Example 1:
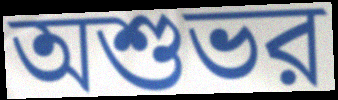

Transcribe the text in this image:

অশুভর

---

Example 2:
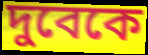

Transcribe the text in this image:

দুবেকে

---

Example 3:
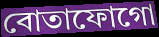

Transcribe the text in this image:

বোতাফোগো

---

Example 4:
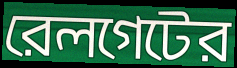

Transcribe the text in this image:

রেলগেটের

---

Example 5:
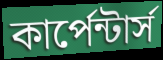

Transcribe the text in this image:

কার্পেন্টার্স